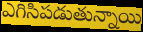
ఎగిసిపడుతున్నాయి